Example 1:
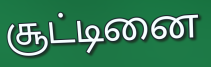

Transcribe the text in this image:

சூட்டினை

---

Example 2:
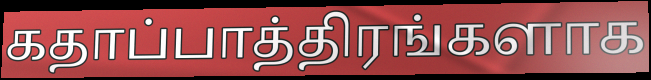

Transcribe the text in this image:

கதாப்பாத்திரங்களாக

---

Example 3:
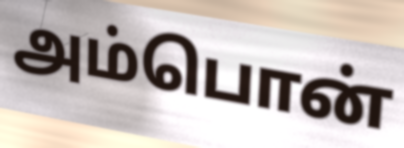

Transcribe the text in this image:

அம்பொன்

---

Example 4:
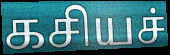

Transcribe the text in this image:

கசியச்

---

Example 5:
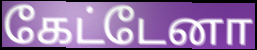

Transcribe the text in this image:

கேட்டேனா